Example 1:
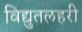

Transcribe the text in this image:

विद्युतलहरी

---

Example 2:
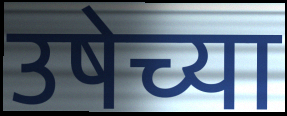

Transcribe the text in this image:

उषेच्या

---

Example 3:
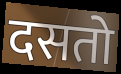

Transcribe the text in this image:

दसतो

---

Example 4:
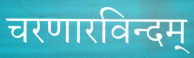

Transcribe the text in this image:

चरणारविन्दम्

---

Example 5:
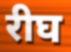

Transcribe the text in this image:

रीघ